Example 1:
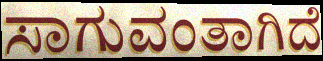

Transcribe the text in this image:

ಸಾಗುವಂತಾಗಿದೆ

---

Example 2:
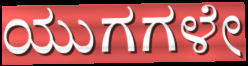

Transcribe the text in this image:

ಯುಗಗಳೇ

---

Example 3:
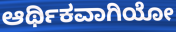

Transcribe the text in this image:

ಆರ್ಥಿಕವಾಗಿಯೋ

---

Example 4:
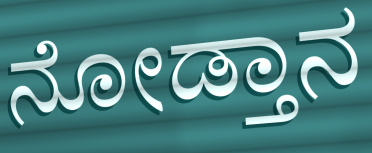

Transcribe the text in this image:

ನೋಡ್ತಾನ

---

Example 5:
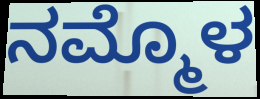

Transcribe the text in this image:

ನಮ್ಮೊಳ